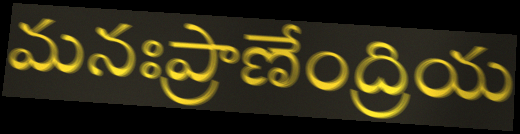
మనఃప్రాణేంద్రియ